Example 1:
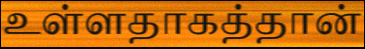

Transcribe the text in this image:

உள்ளதாகத்தான்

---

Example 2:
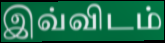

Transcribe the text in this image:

இவ்விடம்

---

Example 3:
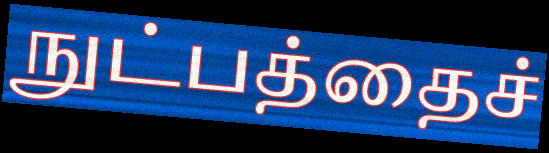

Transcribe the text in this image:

நுட்பத்தைச்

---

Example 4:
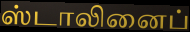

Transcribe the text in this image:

ஸ்டாலினைப்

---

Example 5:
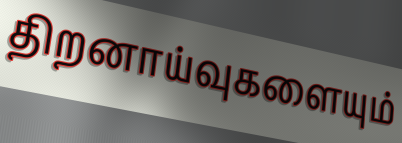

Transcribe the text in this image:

திறனாய்வுகளையும்